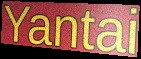
Yantai